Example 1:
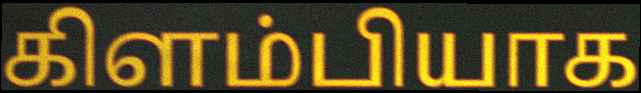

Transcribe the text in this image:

கிளம்பியாக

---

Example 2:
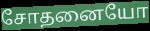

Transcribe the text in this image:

சோதனையோ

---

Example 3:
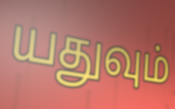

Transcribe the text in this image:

யதுவும்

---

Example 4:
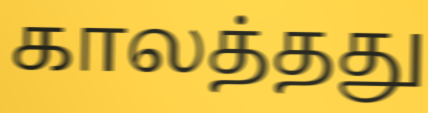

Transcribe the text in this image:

காலத்தது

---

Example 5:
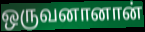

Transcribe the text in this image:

ஒருவனானான்